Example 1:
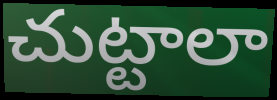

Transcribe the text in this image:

చుట్టాలా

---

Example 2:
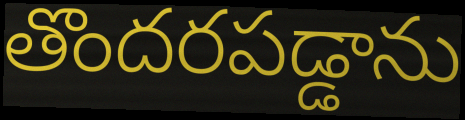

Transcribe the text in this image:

తొందరపడ్డాను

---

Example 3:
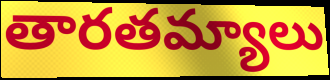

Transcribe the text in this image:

తారతమ్యాలు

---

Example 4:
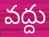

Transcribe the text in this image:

వద్దు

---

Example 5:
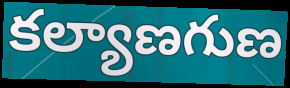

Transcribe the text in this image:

కల్యాణగుణ